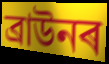
ব্ৰাউনৰ